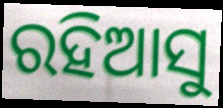
ରହିଆସୁ